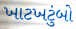
ખાટખટુંબો